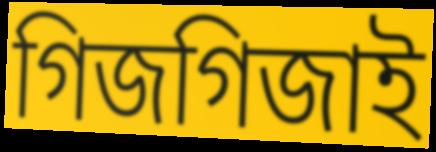
গিজগিজাই